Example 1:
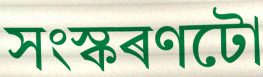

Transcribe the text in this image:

সংস্কৰণটো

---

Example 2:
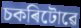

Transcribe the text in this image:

চকৰিটোৱে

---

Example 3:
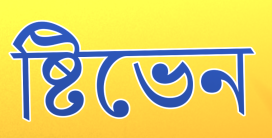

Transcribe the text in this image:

ষ্টিভেন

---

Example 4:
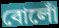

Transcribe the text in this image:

বোলোঁ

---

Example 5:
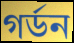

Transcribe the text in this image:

গৰ্ডন